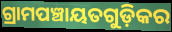
ଗ୍ରାମପଞ୍ଚାୟତଗୁଡ଼ିକର